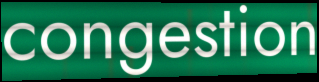
congestion